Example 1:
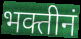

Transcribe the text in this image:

भक्तीनं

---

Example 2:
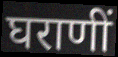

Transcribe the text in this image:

घराणीं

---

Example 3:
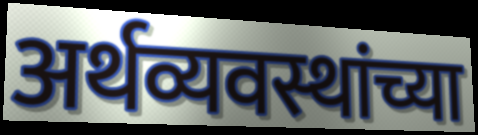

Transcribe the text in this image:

अर्थव्यवस्थांच्या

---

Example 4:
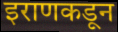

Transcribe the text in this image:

इराणकडून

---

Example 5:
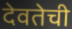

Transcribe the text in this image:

देवतेची